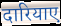
दारियाए